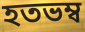
হতভম্ব